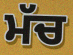
ਮੱਚ